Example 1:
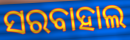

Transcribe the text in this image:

ସରବାହାଲ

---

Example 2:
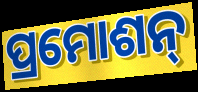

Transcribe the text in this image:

ପ୍ରମୋଶନ୍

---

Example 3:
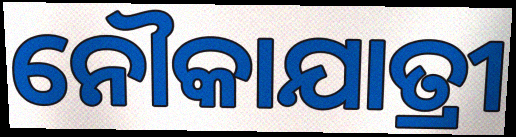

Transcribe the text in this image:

ନୌକାଯାତ୍ରୀ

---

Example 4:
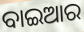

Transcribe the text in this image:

ବାଇଆର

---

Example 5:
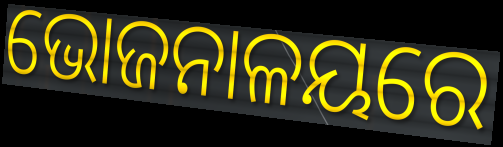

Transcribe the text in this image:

ଭୋଜନାଳୟରେ